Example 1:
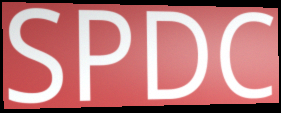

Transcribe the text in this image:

SPDC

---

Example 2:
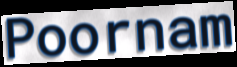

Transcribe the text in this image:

Poornam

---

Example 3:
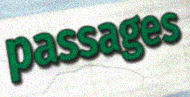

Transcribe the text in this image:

passages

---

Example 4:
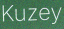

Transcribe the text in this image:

Kuzey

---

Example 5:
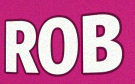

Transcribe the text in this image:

ROB